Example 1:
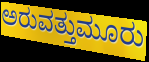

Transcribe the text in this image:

ಅರುವತ್ತುಮೂರು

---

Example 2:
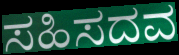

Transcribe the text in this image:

ಸಹಿಸದವ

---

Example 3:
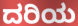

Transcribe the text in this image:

ದರಿಯ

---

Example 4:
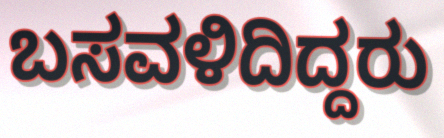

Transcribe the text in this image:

ಬಸವಳಿದಿದ್ದರು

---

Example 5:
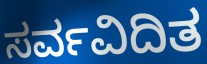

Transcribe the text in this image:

ಸರ್ವವಿದಿತ